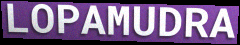
LOPAMUDRA